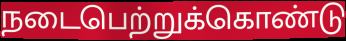
நடைபெற்றுக்கொண்டு